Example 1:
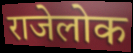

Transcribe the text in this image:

राजेलोक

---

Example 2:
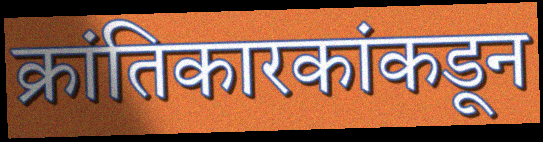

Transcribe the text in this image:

क्रांतिकारकांकडून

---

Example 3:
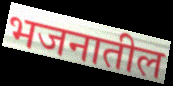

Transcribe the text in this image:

भजनातील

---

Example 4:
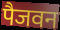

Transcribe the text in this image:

पैजवन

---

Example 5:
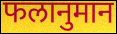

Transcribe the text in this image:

फलानुमान